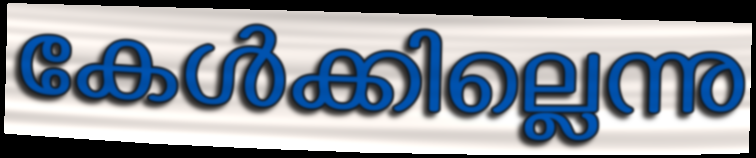
കേൾക്കില്ലെന്നു